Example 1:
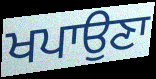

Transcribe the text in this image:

ਖਪਾਉਣਾ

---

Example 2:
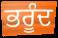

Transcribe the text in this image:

ਭਰੂੰਦ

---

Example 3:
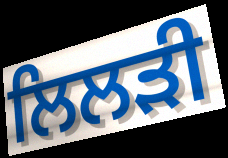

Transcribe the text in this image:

ਲਿਲੜੀ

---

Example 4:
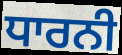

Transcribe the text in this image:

ਧਾਰਨੀ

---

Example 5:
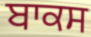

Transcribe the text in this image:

ਬਾਕਸ